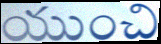
యుంచి